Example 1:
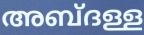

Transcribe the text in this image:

അബ്ദള്ള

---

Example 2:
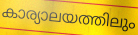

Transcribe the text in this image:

കാര്യാലയത്തിലും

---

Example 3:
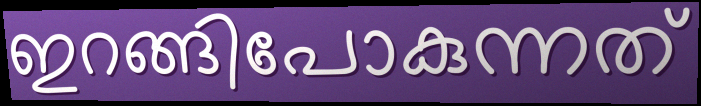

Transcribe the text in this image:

ഇറങ്ങിപോകുന്നത്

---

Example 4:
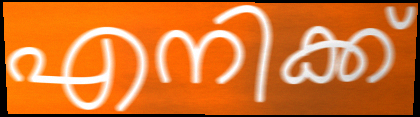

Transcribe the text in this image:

എനിക്ക്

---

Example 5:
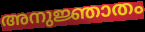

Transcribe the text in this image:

അനുജ്ഞാതം